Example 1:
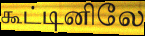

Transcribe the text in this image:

கூட்டினிலே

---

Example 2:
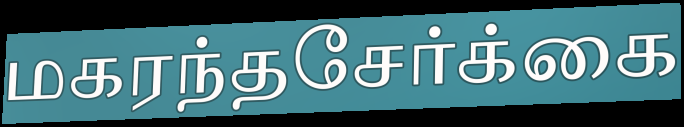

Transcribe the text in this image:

மகரந்தசேர்க்கை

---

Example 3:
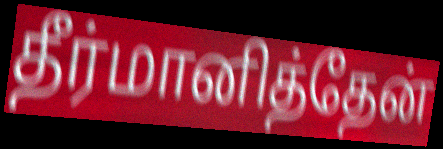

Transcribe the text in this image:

தீர்மானித்தேன்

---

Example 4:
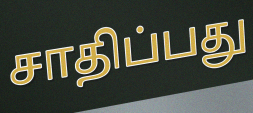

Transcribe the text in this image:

சாதிப்பது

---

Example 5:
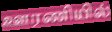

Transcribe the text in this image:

ஊரணியில்